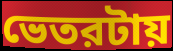
ভেতরটায়